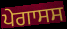
ਪੇਗਾਸਸ